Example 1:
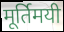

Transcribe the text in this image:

मूर्तिमयी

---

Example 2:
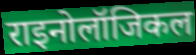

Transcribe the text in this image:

राइनोलॉजिकल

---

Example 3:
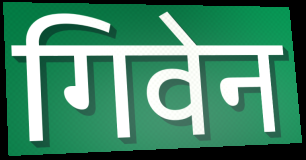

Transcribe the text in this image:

गिवेन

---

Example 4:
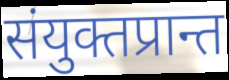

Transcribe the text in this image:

संयुक्तप्रान्त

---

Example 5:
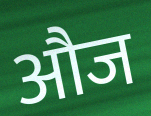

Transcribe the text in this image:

औज